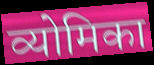
व्योमिका